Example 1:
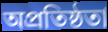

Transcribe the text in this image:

অপ্রতিষ্ঠতা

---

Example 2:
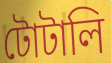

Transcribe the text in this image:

টোটালি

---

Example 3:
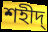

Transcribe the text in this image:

শহীদ্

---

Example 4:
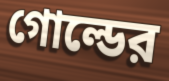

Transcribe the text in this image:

গোল্ডের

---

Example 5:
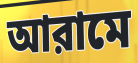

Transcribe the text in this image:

আরামে